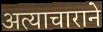
अत्याचाराने